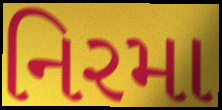
નિરમા